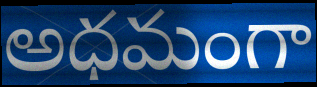
అధమంగా